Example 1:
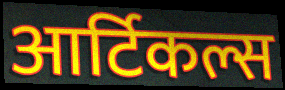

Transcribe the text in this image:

आर्टिकल्स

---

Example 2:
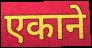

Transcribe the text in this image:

एकाने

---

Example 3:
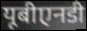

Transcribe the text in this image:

यूबीएनडी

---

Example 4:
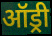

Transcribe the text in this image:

ऑड्री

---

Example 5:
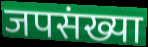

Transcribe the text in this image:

जपसंख्या